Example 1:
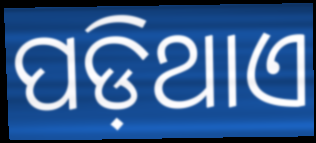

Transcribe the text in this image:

ପଡ଼ିଥାଏ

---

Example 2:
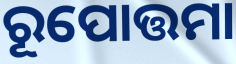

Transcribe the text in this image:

ରୂପୋତ୍ତମା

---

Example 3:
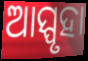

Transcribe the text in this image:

ଆସ୍ପୃହା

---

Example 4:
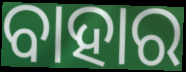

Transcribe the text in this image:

ବାହାର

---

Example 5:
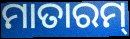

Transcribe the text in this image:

ମାତାରମ୍